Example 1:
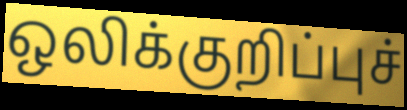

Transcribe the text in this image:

ஒலிக்குறிப்புச்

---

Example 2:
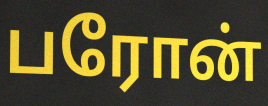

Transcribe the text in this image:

பரோன்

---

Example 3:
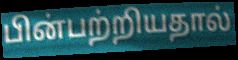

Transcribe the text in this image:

பின்பற்றியதால்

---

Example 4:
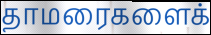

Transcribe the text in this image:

தாமரைகளைக்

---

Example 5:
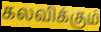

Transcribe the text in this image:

கலவிக்கும்